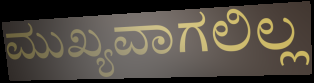
ಮುಖ್ಯವಾಗಲಿಲ್ಲ